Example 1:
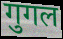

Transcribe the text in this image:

गुगल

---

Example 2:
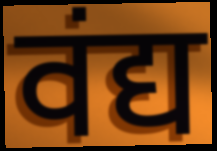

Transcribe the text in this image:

वंद्य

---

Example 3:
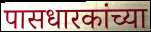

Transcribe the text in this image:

पासधारकांच्या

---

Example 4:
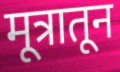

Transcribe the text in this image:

मूत्रातून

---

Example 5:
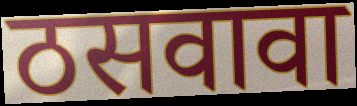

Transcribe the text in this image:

ठसवावा